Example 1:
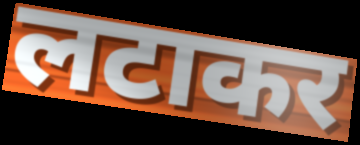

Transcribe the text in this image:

लटाकर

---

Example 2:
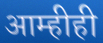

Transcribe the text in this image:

आम्हीही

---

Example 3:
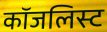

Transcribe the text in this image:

कॉजलिस्ट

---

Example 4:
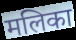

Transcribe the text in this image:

मलिका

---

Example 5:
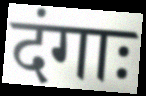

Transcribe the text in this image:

दंगाः